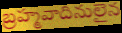
బ్రహ్మవాదినులైన